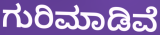
ಗುರಿಮಾಡಿವೆ